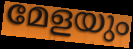
മേളയും